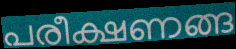
പരീക്ഷണങ്ങ